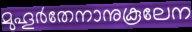
മുഹൂർതേനാനുകൂലേന